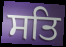
ਸਤਿ